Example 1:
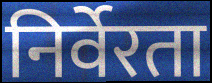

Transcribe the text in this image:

निर्वेरता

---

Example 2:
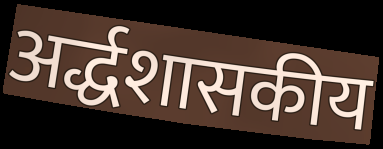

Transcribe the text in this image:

अर्द्धशासकीय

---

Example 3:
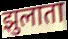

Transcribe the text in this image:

झुलाता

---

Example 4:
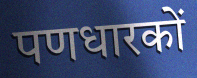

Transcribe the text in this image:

पणधारकों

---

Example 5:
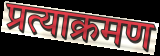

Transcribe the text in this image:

प्रत्याक्रमण